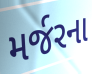
મર્જરના